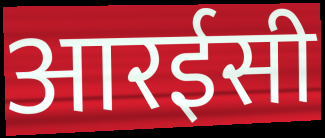
आरईसी